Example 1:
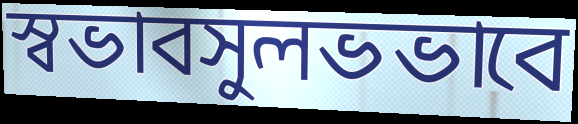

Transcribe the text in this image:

স্বভাবসুলভভাবে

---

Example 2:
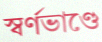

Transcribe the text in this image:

স্বর্ণভাণ্ডে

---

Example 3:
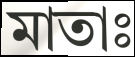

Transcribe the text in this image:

মাতাঃ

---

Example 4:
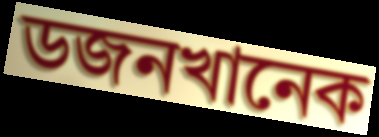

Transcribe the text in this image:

ডজনখানেক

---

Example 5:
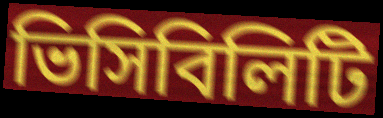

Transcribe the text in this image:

ভিসিবিলিটি